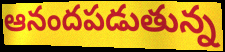
ఆనందపడుతున్న